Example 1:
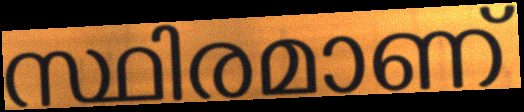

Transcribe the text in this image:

സ്ഥിരമാണ്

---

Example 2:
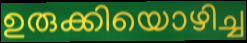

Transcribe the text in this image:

ഉരുക്കിയൊഴിച്ച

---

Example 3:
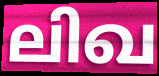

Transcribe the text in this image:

ലിഖ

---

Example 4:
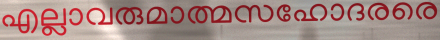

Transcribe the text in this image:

എല്ലാവരുമാത്മസഹോദരരെ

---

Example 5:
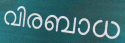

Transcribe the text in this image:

വിരബാധ